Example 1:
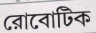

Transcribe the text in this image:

রোবোটিক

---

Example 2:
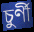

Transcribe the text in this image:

চুর্ণী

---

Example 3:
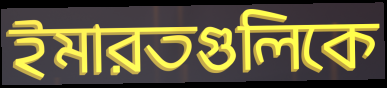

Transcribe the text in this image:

ইমারতগুলিকে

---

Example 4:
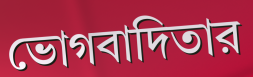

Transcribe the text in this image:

ভোগবাদিতার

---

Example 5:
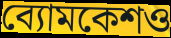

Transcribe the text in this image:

ব্যোমকেশও